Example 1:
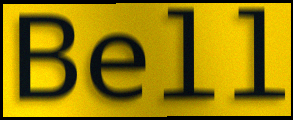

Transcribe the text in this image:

Bell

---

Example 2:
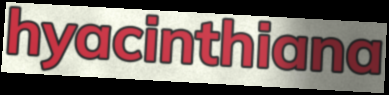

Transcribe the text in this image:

hyacinthiana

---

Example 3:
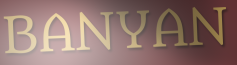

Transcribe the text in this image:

BANYAN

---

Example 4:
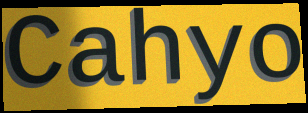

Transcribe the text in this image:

Cahyo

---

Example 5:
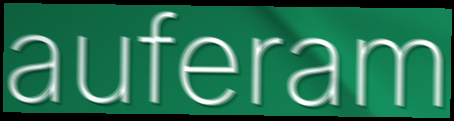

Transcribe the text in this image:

auferam